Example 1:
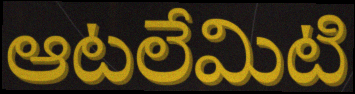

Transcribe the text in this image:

ఆటలేమిటి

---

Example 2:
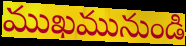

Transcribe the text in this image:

ముఖమునుండి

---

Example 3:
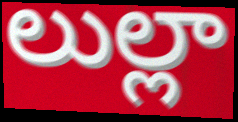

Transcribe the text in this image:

లుల్లా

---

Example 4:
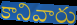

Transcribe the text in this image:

కానివారు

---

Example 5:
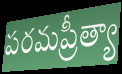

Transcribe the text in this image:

పరమప్రీత్యా